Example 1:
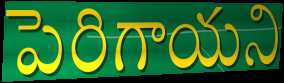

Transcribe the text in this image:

పెరిగాయని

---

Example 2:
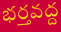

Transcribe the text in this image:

భర్తవద్ద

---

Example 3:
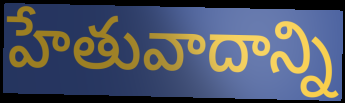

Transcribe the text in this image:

హేతువాదాన్ని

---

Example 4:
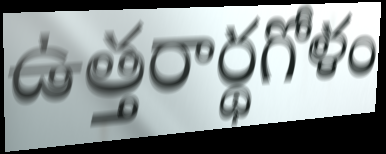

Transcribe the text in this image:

ఉత్తరార్థగోళం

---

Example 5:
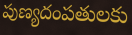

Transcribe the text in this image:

పుణ్యదంపతులకు